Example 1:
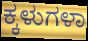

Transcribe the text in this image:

ಕ್ಕಳುಗಳಾ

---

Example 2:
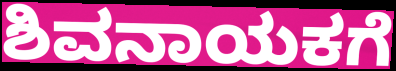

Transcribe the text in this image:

ಶಿವನಾಯಕಗೆ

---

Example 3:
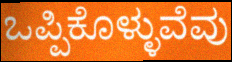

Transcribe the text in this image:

ಒಪ್ಪಿಕೊಳ್ಳುವೆವು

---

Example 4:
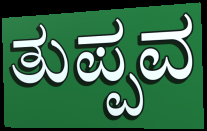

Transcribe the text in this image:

ತುಪ್ಪವ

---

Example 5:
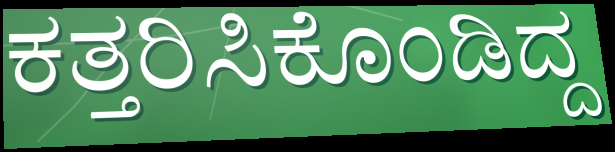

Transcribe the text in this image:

ಕತ್ತರಿಸಿಕೊಂಡಿದ್ದ